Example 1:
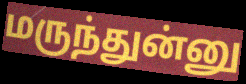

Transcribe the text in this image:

மருந்துன்னு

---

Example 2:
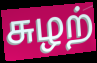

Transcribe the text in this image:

சுழற்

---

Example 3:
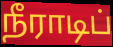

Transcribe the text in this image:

நீராடிப்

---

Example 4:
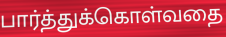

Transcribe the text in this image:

பார்த்துக்கொள்வதை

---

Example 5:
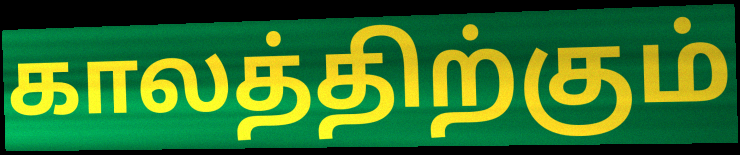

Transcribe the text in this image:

காலத்திற்கும்